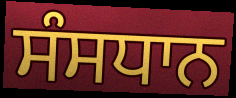
ਸੰਸਧਾਨ